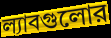
ল্যাবগুলোর